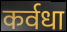
कर्वधा